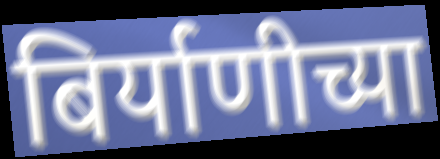
बिर्याणीच्या